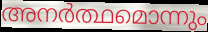
അനർത്ഥമൊന്നും